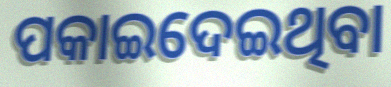
ପକାଇଦେଇଥିବା